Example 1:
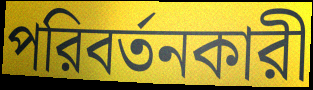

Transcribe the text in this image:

পরিবর্তনকারী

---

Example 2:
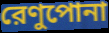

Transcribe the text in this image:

রেণুপোনা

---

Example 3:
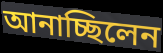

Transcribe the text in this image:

আনাচ্ছিলেন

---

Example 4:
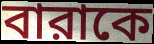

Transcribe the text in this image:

বারাকে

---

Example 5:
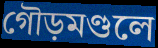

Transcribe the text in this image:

গৌড়মণ্ডলে